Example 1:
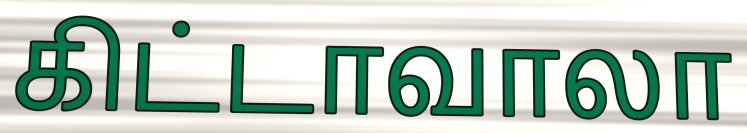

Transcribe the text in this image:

கிட்டாவாலா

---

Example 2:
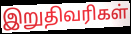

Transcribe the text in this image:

இறுதிவரிகள்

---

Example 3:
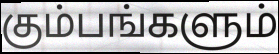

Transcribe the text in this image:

கும்பங்களும்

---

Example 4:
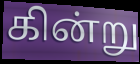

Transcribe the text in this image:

கின்று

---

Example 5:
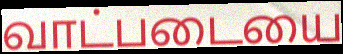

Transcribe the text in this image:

வாட்படையை